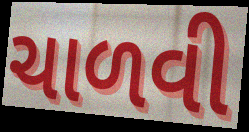
ચાળવી